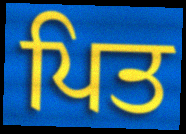
ਪਿਤ